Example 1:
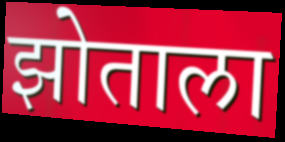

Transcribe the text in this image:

झोताला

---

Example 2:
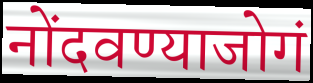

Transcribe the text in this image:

नोंदवण्याजोगं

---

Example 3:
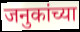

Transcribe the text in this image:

जनुकांच्या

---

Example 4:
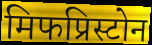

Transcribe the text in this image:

मिफप्रिस्टोन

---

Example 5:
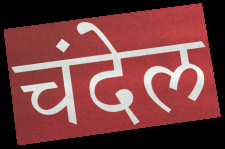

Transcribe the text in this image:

चंदेल